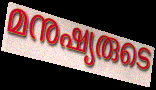
മനുഷ്യരുടെ